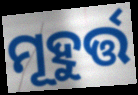
ମୂହୁର୍ତ୍ତ